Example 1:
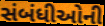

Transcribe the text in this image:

સંબંધીઓની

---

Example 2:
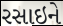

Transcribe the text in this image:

રસાઇને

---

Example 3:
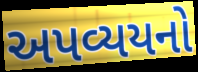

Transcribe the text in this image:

અપવ્યયનો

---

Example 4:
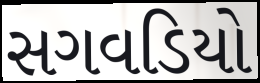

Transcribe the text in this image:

સગવડિયો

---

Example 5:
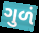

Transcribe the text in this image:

ગુળં